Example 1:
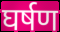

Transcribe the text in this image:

घर्षण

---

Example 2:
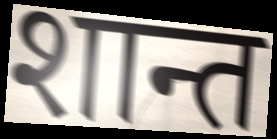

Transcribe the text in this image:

शान्त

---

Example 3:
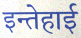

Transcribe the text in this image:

इन्तेहाई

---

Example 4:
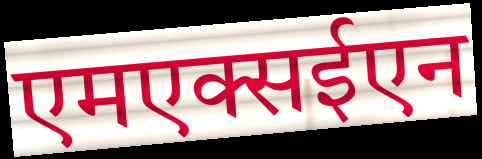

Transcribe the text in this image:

एमएक्सईएन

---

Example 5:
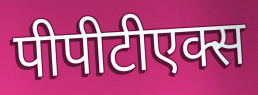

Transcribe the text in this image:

पीपीटीएक्स